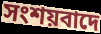
সংশয়বাদে